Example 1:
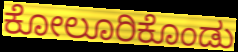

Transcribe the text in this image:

ಕೋಲೂರಿಕೊಂಡು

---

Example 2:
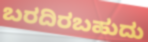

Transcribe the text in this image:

ಬರದಿರಬಹುದು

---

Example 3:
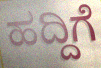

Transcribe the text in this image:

ಹದ್ದಿಗೆ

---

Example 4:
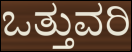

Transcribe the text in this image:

ಒತ್ತುವರಿ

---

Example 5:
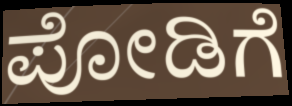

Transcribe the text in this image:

ಪೋಡಿಗೆ